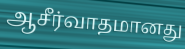
ஆசீர்வாதமானது